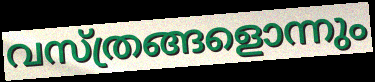
വസ്ത്രങ്ങളൊന്നും